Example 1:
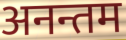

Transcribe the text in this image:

अनन्तम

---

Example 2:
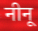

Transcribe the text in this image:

नीनू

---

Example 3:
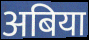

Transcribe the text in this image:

अबिया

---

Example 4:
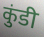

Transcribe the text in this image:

कुंडी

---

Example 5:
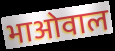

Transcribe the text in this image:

भाओवाल